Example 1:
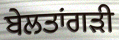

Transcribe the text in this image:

ਬੇਲਤਾਂਗੜੀ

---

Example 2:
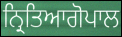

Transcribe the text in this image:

ਨ੍ਰਿਤਿਆਗੋਪਾਲ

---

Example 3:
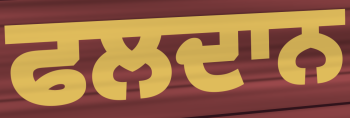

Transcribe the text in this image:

ਫਲਦਾਨ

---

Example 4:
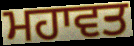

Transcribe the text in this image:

ਮਹਾਵਤ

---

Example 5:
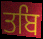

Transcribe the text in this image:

ਤਬਿ